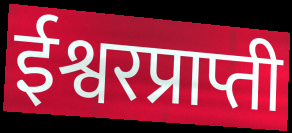
ईश्वरप्राप्ती